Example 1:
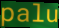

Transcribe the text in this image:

palu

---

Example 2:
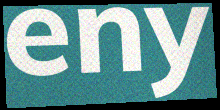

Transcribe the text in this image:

eny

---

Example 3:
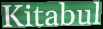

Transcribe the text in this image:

Kitabul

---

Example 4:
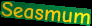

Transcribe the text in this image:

Seasmum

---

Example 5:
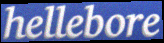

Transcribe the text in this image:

hellebore